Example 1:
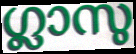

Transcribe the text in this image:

ഗ്ലാസു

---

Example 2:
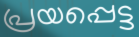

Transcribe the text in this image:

പ്രയപ്പെട്ട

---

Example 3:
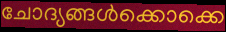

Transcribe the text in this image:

ചോദ്യങ്ങൾക്കൊക്കെ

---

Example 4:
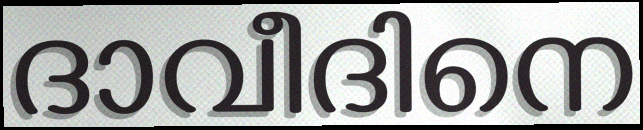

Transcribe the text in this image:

ദാവീദിനെ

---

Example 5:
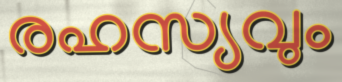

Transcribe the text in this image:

രഹസ്യവും